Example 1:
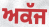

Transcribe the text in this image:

ਅਕੱਜ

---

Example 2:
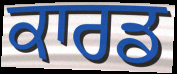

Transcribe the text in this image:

ਕਾਰਡ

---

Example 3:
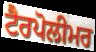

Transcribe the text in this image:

ਟੈਰਪੋਲੀਮਰ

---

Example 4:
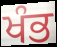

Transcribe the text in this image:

ਖੰਭ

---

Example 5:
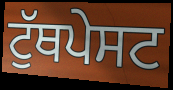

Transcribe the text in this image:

ਟੁੱਥਪੇਸਟ